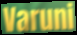
Varuni